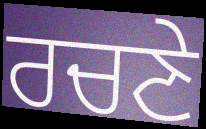
ਰਚਣੇ